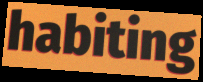
habiting